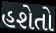
હશેતો